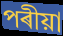
পৰীয়া